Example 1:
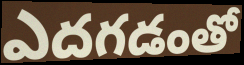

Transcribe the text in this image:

ఎదగడంతో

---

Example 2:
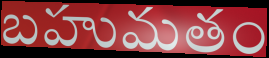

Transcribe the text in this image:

బహుమతం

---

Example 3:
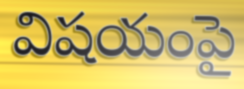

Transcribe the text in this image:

విషయంపై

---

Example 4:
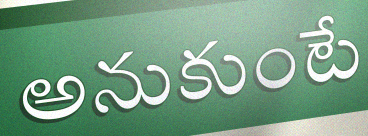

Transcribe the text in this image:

అనుకుంటే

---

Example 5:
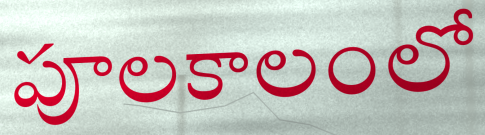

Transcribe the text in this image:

పూలకాలంలో